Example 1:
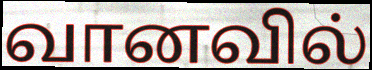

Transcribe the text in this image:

வானவில்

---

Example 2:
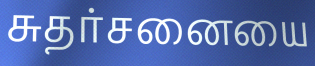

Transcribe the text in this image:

சுதர்சனையை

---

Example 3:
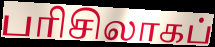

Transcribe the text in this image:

பரிசிலாகப்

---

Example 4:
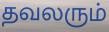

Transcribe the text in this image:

தவலரும்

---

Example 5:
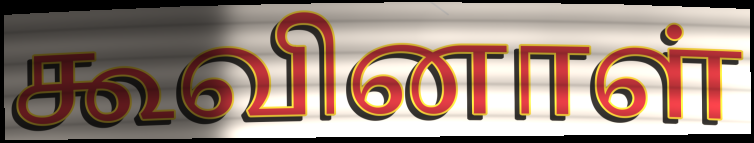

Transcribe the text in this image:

கூவினாள்